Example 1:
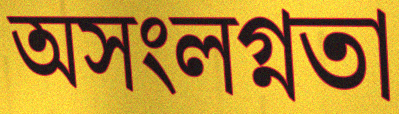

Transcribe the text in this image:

অসংলগ্নতা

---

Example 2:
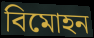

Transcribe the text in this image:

বিমোহন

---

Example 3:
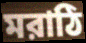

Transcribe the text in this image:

মরাঠি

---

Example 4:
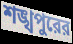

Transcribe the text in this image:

শঙ্খপুরের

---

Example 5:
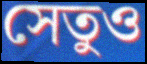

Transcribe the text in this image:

সেতুও